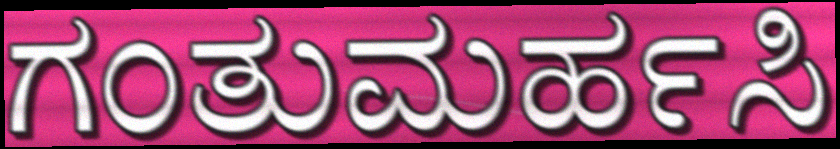
ಗಂತುಮರ್ಹಸಿ